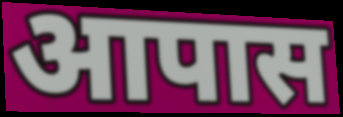
आपास